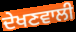
ਦੇਖਣਵਾਲੀ